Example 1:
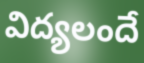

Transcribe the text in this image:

విద్యలందే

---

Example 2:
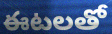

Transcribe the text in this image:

ఈటలతో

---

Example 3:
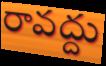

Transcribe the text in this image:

రావద్దు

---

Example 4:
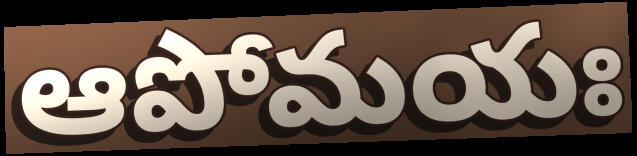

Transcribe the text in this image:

ఆపోమయః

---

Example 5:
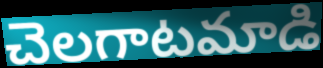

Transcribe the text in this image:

చెలగాటమాడి